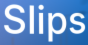
Slips